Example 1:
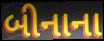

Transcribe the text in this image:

બીનાના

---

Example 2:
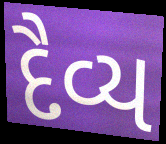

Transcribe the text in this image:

દૈવ્ય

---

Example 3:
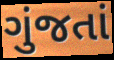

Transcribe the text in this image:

ગુંજતાં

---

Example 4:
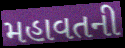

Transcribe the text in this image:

મહાવતની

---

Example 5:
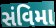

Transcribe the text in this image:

સંવિમા